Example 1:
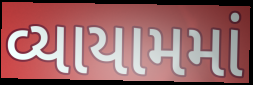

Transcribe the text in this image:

વ્યાયામમાં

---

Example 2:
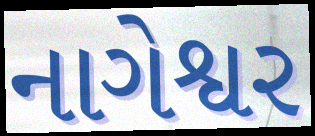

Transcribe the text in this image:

નાગેશ્વર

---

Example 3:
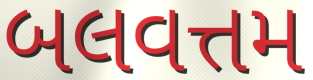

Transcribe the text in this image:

બલવત્તમ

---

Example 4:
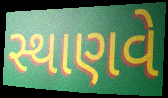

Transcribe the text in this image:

સ્થાણવે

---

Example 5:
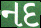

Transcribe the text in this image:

નદ